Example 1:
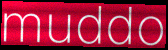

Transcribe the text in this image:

muddo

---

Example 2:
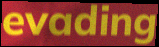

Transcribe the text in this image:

evading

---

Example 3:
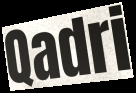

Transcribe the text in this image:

Qadri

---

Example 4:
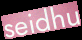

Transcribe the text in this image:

seidhu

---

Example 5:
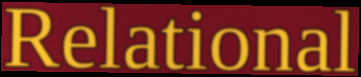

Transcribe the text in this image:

Relational